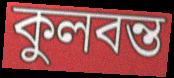
কুলবন্ত